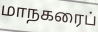
மாநகரைப்